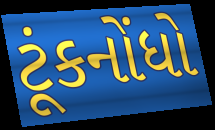
ટૂંકનોંધો